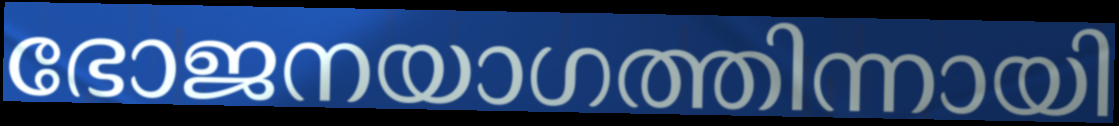
ഭോജനയാഗത്തിന്നായി